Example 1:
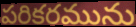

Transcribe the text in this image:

పరికరమును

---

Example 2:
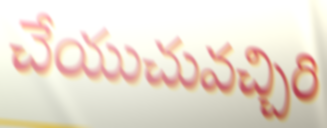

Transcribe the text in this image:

చేయుచువచ్చిరి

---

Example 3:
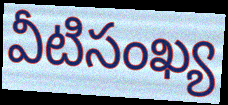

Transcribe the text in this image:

వీటిసంఖ్య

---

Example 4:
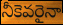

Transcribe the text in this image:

నీకెవరైనా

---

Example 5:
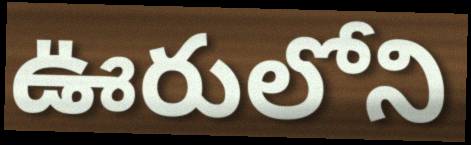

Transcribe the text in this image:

ఊరులోని